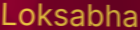
Loksabha